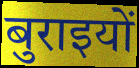
बुराइयों